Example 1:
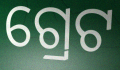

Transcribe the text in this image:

ଗ୍ରେଟ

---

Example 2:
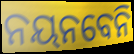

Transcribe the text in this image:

ନୟନବେନି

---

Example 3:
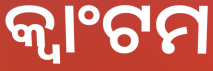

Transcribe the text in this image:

କ୍ୱାଂଟମ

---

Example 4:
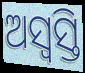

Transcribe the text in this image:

ଅସ୍ୱସ୍ତି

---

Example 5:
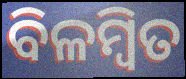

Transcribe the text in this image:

ବିଳମ୍ବିତ